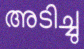
അടിച്ചു